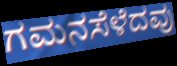
ಗಮನಸೆಳೆದವು